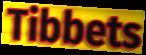
Tibbets